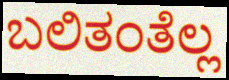
ಬಲಿತಂತೆಲ್ಲ